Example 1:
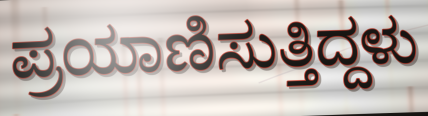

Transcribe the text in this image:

ಪ್ರಯಾಣಿಸುತ್ತಿದ್ದಳು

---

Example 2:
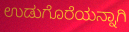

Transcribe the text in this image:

ಉಡುಗೊರೆಯನ್ನಾಗಿ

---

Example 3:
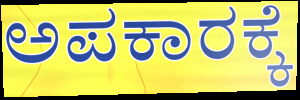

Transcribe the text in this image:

ಅಪಕಾರಕ್ಕೆ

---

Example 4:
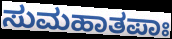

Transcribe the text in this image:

ಸುಮಹಾತಪಾಃ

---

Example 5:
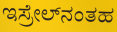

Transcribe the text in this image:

ಇಸ್ರೇಲ್‌ನಂತಹ